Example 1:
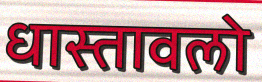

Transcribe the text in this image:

धास्तावलो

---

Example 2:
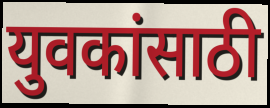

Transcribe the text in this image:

युवकांसाठी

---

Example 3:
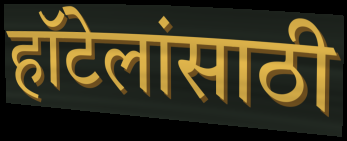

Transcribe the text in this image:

हॉटेलांसाठी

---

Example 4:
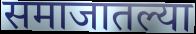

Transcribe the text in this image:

समाजातल्‍या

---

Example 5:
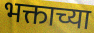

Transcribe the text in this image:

भक्ताच्या